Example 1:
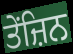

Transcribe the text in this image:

ਤੇਂਜ਼ਿਨ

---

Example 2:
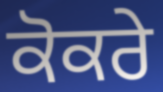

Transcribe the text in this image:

ਕੋਕਰੇ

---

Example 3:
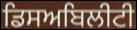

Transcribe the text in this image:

ਡਿਸਅਬਿਲੀਟੀ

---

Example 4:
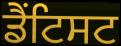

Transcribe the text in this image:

ਡੈਂਟਿਸਟ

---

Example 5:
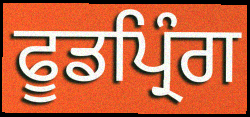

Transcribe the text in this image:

ਫੂਡਪ੍ਰਿੰਗ